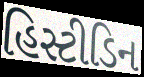
હિસ્ટીડિન